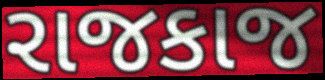
રાજકાજ